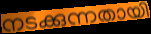
നടക്കുന്നതായി